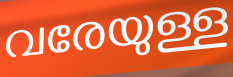
വരേയുള്ള